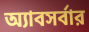
অ্যাবসর্বার